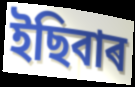
ইছিবাৰ